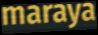
maraya